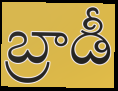
బ్రాడీ